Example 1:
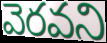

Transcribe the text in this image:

వెరవని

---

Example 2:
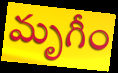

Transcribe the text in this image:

మృగీం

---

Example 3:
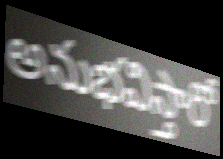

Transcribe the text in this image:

అనుభవిస్తారో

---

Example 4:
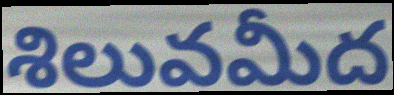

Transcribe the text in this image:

శిలువమీద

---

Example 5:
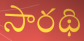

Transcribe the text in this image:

సారథి